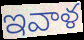
ఇవాళ